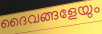
ദൈവങ്ങളേയും